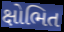
ક્ષોભિત